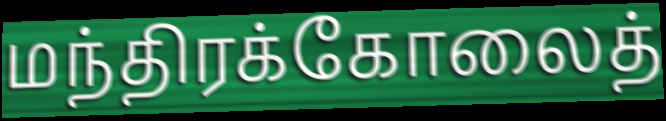
மந்திரக்கோலைத்